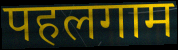
पहलगाम